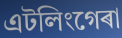
এটলিংগেৰা